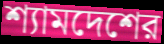
শ্যামদেশের